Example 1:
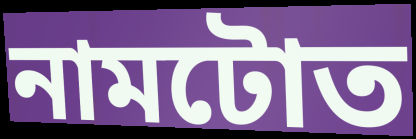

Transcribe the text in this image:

নামটোত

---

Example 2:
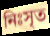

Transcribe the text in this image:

নিঃসৃত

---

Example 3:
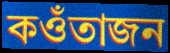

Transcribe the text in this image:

কওঁতাজন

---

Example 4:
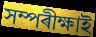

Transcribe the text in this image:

সম্পৰীক্ষাই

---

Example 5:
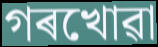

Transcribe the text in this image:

গৰখোৱা